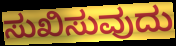
ಸುಖಿಸುವುದು